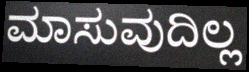
ಮಾಸುವುದಿಲ್ಲ